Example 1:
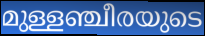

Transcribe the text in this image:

മുള്ളഞ്ചീരയുടെ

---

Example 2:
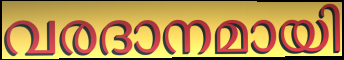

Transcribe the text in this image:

വരദാനമായി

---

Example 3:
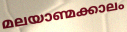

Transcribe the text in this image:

മലയാണ്മക്കാലം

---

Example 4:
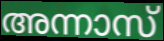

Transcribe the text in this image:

അന്നാസ്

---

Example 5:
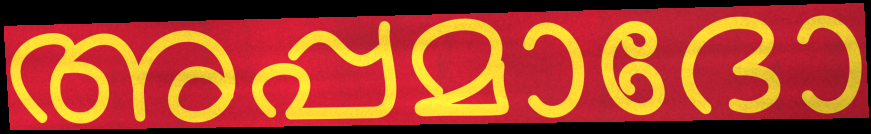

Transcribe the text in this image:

അപ്പമാദോ